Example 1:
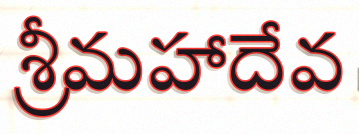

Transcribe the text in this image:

శ్రీమహాదేవ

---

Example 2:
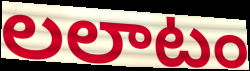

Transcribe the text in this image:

లలాటం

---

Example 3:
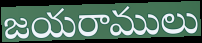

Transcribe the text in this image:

జయరాములు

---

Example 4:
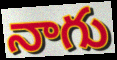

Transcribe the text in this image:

నాగు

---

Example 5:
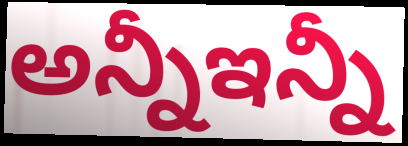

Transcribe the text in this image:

అన్నీఇన్నీ